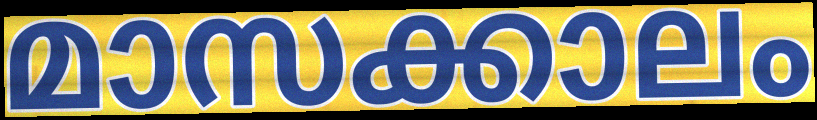
മാസക്കാലം